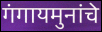
गंगायमुनांचे